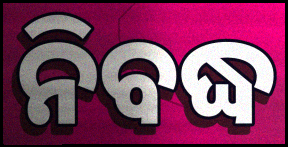
ନିବଦ୍ଧ